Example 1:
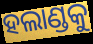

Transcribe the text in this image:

ହଲାଣ୍ଡକୁ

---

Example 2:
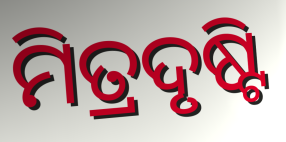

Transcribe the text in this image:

ମିତ୍ରଦୃଷ୍ଟି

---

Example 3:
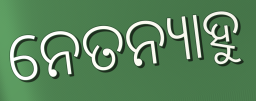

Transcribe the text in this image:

ନେତନ୍ୟାହୁ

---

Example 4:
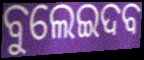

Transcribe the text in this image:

ବୁଲେଇଦବ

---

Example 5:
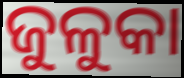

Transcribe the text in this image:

ଜୁଳୁକା